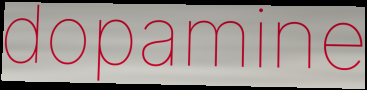
dopamine